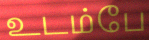
உடம்பே